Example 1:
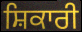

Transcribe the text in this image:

ਸ਼ਿਕਾਰੀ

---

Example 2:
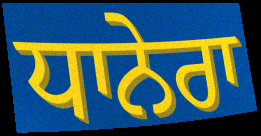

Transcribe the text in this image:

ਧਾਨੇਰਾ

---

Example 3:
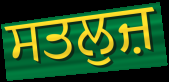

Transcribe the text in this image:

ਸਤਲੁਜ਼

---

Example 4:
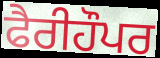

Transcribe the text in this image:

ਫੈਰੀਹੌਪਰ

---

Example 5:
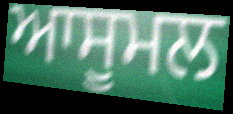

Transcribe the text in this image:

ਆਸੂਮਲ